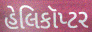
હેલિકૉપ્ટર